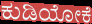
ಕುಡಿಯೋಕೆ